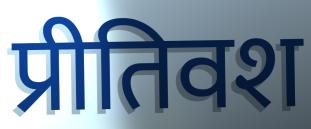
प्रीतिवश